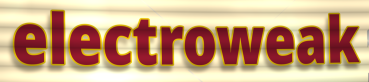
electroweak